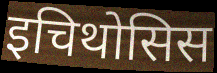
इचिथोसिस